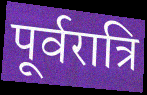
पूर्वरात्रि